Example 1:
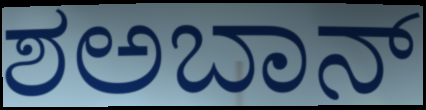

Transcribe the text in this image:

ಶಅಬಾನ್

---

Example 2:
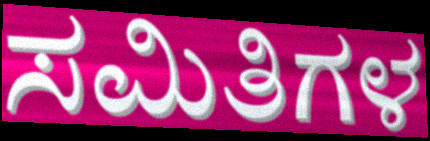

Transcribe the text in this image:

ಸಮಿತಿಗಳ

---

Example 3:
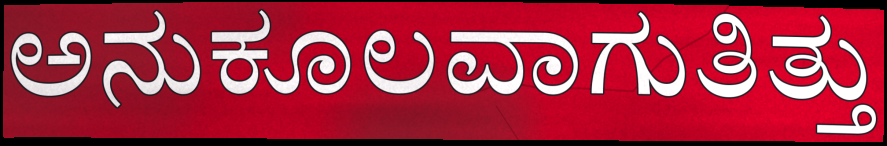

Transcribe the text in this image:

ಅನುಕೂಲವಾಗುತಿತ್ತು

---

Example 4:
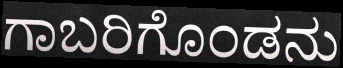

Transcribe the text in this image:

ಗಾಬರಿಗೊಂಡನು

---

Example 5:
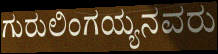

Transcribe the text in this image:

ಗುರುಲಿಂಗಯ್ಯನವರು